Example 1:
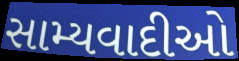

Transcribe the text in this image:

સામ્યવાદીઓ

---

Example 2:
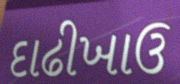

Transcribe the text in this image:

દાઢીખાઉ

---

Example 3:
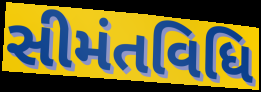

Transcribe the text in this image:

સીમંતવિધિ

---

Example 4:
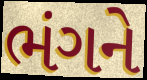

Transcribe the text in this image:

ભંગને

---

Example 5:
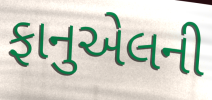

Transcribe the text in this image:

ફાનુએલની